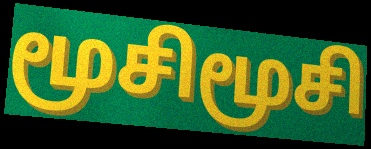
மூசிமூசி